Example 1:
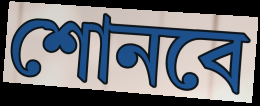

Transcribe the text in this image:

শোনবে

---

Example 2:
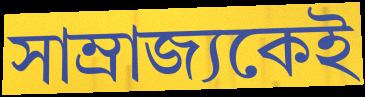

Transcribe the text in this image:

সাম্রাজ্যকেই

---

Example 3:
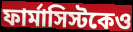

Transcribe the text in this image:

ফার্মাসিস্টকেও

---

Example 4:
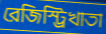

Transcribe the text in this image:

রেজিস্ট্রিখাতা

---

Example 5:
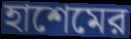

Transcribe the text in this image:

হাশেমের